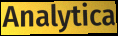
Analytica